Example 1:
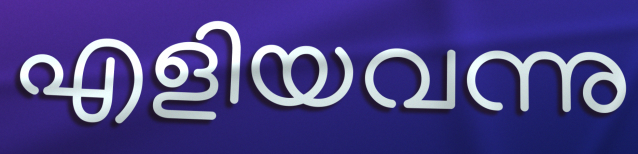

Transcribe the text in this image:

എളിയവന്നു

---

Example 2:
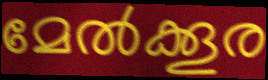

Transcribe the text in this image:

മേൽക്കൂര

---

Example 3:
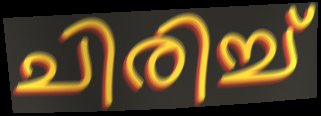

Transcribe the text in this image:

ചിരിച്ച്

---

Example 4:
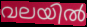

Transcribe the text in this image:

വലയിൽ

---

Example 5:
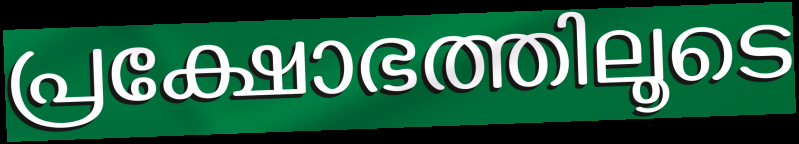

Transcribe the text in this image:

പ്രക്ഷോഭത്തിലൂടെ